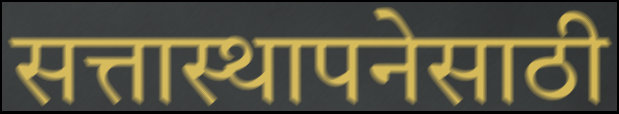
सत्तास्थापनेसाठी